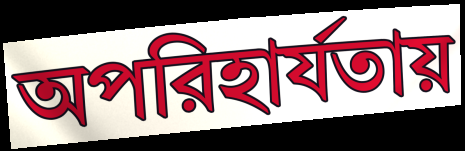
অপরিহার্যতায়